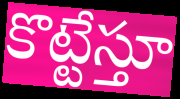
కొట్టేస్తూ